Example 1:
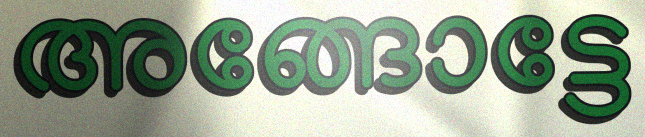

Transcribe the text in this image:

അങ്ങോട്ടേ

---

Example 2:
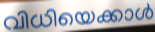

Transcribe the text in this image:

വിധിയെക്കാൾ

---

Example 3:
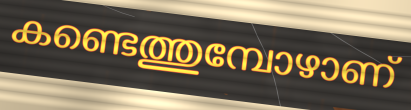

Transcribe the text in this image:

കണ്ടെത്തുമ്പോഴാണ്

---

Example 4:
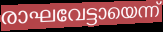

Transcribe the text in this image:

രാഘവേട്ടായെന്ന്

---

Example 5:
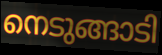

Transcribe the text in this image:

നെടുങ്ങാടി